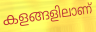
കളങ്ങളിലാണ്